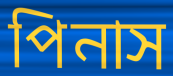
পিনাস